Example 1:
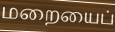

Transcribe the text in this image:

மறையைப்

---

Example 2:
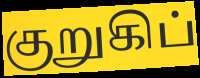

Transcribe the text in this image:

குறுகிப்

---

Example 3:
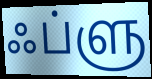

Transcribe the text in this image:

ஃப்ளு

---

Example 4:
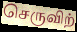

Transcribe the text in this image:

செருவிற்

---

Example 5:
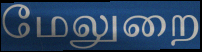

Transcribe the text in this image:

மேலுறை